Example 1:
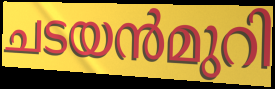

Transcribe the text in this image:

ചടയൻമുറി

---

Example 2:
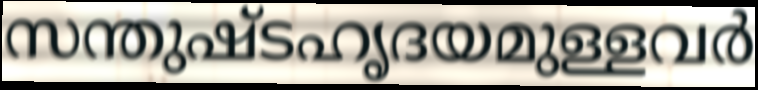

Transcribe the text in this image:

സന്തുഷ്ടഹൃദയമുള്ളവർ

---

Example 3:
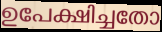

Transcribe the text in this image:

ഉപേക്ഷിച്ചതോ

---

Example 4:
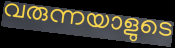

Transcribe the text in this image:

വരുന്നയാളുടെ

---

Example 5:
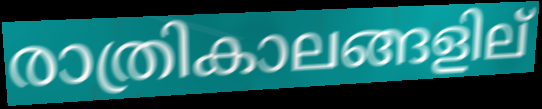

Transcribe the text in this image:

രാത്രികാലങ്ങളില്